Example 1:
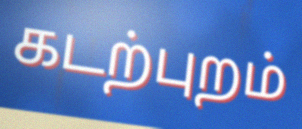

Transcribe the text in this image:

கடற்புறம்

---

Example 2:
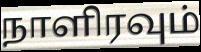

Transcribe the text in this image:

நாளிரவும்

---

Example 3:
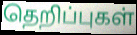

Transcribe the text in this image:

தெறிப்புகள்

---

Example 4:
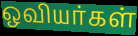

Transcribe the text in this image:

ஒவியர்கள்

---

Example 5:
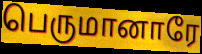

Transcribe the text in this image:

பெருமானாரே